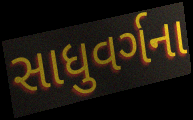
સાધુવર્ગના